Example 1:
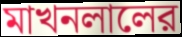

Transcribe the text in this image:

মাখনলালের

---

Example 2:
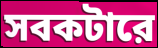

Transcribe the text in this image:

সবকটারে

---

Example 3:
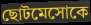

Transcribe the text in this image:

ছোটমেসোকে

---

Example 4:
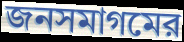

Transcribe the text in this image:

জনসমাগমের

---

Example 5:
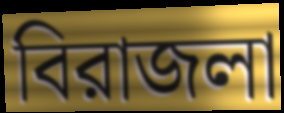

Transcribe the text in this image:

বিরাজলা